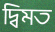
দ্বিমত